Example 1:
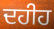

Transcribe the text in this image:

ਦਹੀਹ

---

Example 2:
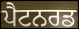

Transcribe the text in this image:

ਪੈਟਨਰਡ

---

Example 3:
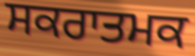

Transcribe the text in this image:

ਸਕਰਾਤਮਕ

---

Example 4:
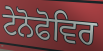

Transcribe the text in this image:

ਟੇਨੋਫੋਵਿਰ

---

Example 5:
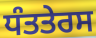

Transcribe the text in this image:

ਧੰਤਤੇਰਸ